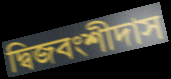
দ্বিজবংশীদাস